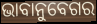
ଭାବାନୁବେଗର